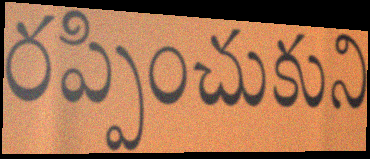
రప్పించుకుని